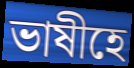
ভাষীহে